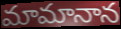
మామానాన